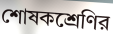
শোষকশ্রেণির